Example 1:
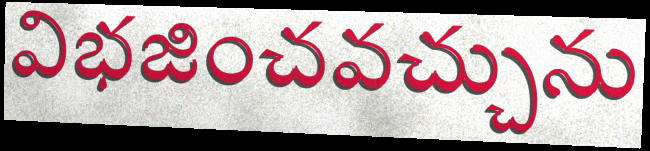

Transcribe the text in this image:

విభజించవచ్చును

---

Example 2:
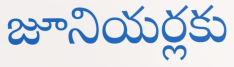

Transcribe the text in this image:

జూనియర్లకు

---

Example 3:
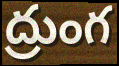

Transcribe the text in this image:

ద్రుంగ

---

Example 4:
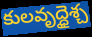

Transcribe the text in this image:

కులవృద్ధైశ్చ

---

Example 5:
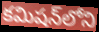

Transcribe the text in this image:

కమిషన్‌లోని